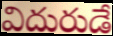
విదురుడే